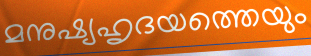
മനുഷ്യഹൃദയത്തെയും